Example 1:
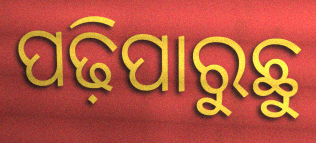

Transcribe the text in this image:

ପଢ଼ିପାରୁଛୁ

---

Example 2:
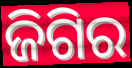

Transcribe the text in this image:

ଜିଗିର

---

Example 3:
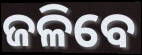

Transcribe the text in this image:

ଜଳିବେ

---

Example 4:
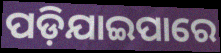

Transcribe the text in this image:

ପଡ଼ିଯାଇପାରେ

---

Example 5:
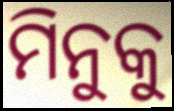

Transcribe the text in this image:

ମିନୁକୁ